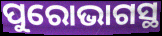
ପୁରୋଭାଗସ୍ଥ